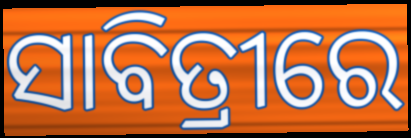
ସାବିତ୍ରୀରେ